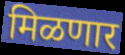
मिळणार